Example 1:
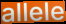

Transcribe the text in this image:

allele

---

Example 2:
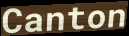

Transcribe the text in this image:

Canton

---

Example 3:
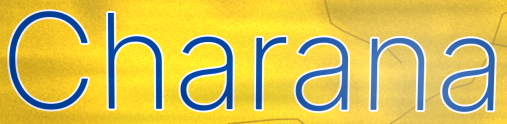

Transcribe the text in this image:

Charana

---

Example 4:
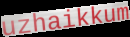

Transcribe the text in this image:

uzhaikkum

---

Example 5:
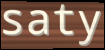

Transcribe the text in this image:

saty